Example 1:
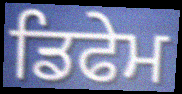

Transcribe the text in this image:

ਡਿਫੇਮ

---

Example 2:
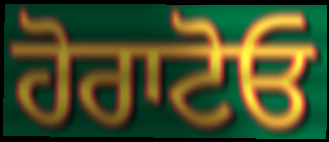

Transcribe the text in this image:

ਹੋਰਾਟੋਓ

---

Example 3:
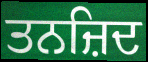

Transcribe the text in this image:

ਤਨਜ਼ਿਦ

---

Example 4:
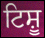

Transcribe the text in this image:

ਟਿਸ਼ੂ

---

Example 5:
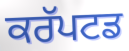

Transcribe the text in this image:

ਕਰੱਪਟਡ